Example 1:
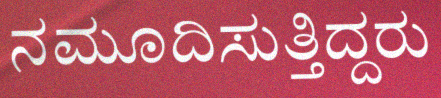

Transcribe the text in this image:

ನಮೂದಿಸುತ್ತಿದ್ದರು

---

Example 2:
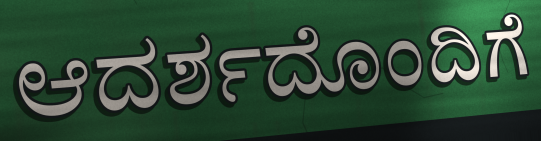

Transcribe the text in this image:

ಆದರ್ಶದೊಂದಿಗೆ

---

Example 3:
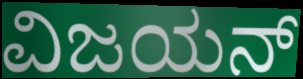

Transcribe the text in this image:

ವಿಜಯನ್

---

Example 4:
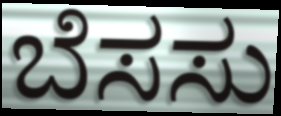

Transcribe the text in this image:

ಬೆಸಸು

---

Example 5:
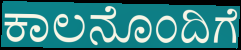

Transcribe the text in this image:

ಕಾಲನೊಂದಿಗೆ